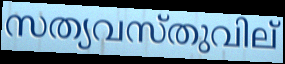
സത്യവസ്തുവില്